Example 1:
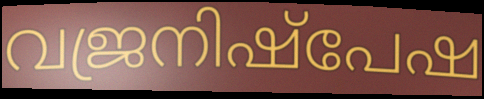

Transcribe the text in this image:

വജ്രനിഷ്പേഷ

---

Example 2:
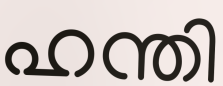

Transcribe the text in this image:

ഹന്തി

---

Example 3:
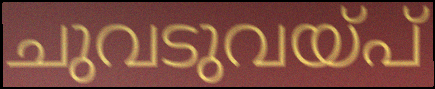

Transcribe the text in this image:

ചുവടുവയ്പ്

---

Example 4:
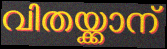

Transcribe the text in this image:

വിതയ്ക്കാന്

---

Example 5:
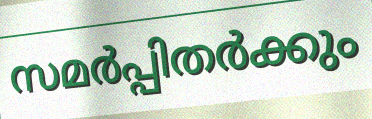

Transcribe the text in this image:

സമർപ്പിതർക്കും